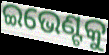
ଇଭେଣ୍ଟକୁ